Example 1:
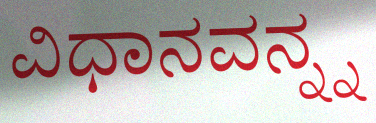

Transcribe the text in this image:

ವಿಧಾನವನ್ನ್ನ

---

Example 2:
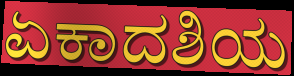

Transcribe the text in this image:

ಏಕಾದಶಿಯ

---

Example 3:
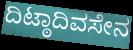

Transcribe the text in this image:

ದಿಟ್ಠಾದಿವಸೇನ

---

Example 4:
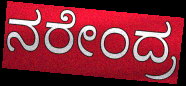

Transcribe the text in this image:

ನರೇಂದ್ರ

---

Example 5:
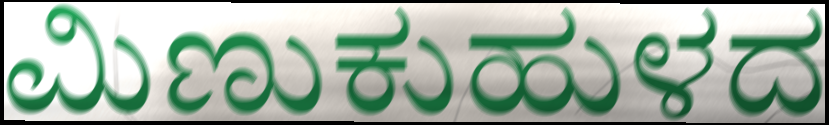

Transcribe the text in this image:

ಮಿಣುಕುಹುಳದ